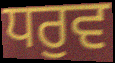
ਧਰੁਵ